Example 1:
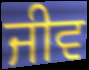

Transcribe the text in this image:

ਜੀਵ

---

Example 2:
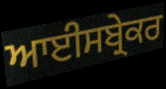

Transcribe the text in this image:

ਆਈਸਬ੍ਰੇਕਰ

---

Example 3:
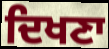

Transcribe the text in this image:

ਦਿਖਣਾ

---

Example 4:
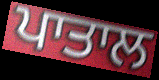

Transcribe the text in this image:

ਪਾਤਾਲ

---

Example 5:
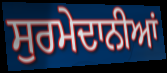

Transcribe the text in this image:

ਸੁਰਮੇਦਾਨੀਆਂ